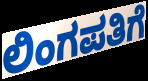
ಲಿಂಗಪತಿಗೆ